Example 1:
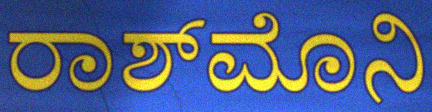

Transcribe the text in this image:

ರಾಶ್‌ಮೊನಿ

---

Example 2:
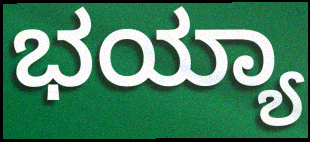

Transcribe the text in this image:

ಭಯ್ಯಾ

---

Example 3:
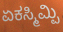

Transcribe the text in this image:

ಏಕಸ್ಮಿಮ್ಪಿ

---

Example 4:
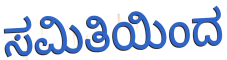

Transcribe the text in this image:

ಸಮಿತಿಯಿಂದ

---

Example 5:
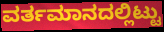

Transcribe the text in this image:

ವರ್ತಮಾನದಲ್ಲಿಟ್ಟು